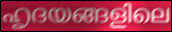
ഹൃദയങ്ങളിലെ